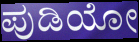
ಪುಡಿಯೋ